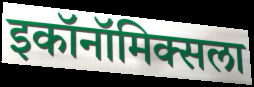
इकॉनॉमिक्सला